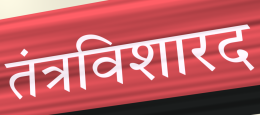
तंत्रविशारद